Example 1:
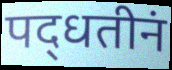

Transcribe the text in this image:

पद्धतीनं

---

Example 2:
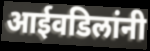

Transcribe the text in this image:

आईवडिलांनी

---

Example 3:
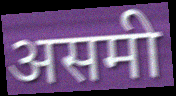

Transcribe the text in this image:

असमी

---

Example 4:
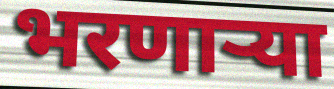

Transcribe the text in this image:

भरणाऱ्या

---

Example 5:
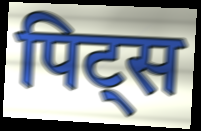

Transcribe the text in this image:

पिट्स